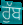
ਰੁੱਬ